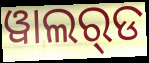
ୱାଲର୍‌ଡ